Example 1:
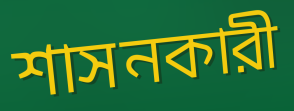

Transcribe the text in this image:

শাসনকারী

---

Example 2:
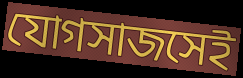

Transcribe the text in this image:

যোগসাজসেই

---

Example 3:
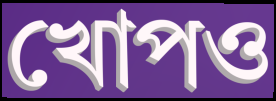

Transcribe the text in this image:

খোপও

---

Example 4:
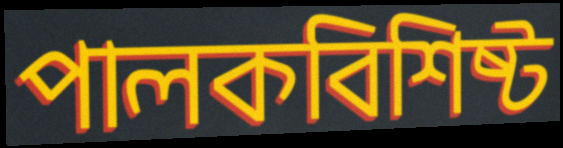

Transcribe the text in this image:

পালকবিশিষ্ট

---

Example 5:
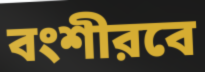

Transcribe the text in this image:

বংশীরবে